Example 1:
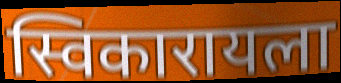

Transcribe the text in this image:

स्विकारायला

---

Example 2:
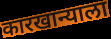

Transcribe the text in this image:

कारखान्याला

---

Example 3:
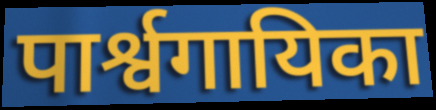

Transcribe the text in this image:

पार्श्वगायिका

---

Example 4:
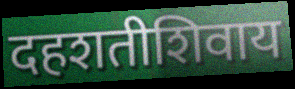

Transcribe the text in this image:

दहशतीशिवाय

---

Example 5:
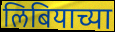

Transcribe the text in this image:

लिबियाच्या